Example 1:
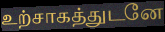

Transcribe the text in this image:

உற்சாகத்துடனே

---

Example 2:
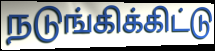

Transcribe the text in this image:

நடுங்கிக்கிட்டு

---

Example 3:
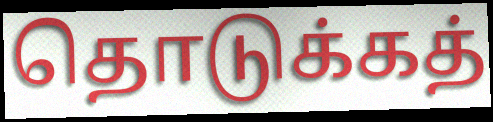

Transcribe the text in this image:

தொடுக்கத்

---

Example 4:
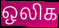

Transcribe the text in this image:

ஒலிக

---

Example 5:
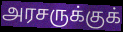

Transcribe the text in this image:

அரசருக்குக்